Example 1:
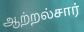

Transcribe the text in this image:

ஆற்றல்சார்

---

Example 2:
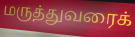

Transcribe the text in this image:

மருத்துவரைக்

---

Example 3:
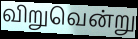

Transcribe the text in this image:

விறுவென்று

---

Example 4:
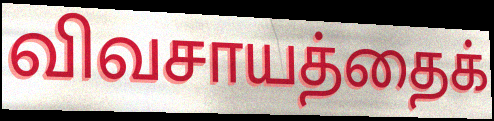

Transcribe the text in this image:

விவசாயத்தைக்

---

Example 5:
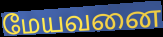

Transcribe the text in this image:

மேயவனை